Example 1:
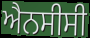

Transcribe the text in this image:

ਐਨਸੀਸੀ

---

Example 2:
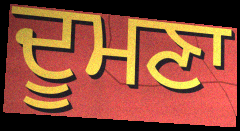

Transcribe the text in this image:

ਦੂਮਣਾ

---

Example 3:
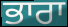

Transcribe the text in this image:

ਭਾਰਾ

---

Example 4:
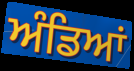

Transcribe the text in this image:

ਅੰਡਿਆਂ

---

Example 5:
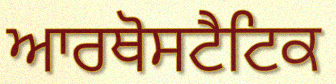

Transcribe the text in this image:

ਆਰਥੋਸਟੈਟਿਕ